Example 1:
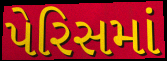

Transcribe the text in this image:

પેરિસમાં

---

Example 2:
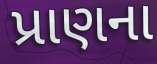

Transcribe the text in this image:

પ્રાણના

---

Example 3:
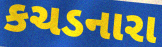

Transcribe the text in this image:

કચડનારા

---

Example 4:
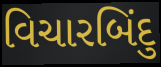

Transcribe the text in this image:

વિચારબિંદુ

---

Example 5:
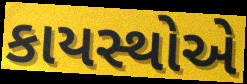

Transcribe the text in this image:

કાયસ્થોએ